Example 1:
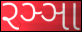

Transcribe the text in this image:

રઞ્ઞા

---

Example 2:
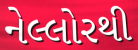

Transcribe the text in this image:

નેલ્લોરથી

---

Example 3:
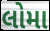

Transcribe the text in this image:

લોમા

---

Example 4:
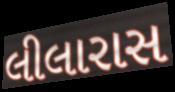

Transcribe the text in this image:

લીલારાસ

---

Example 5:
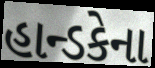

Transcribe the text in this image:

હાન્ડકેના